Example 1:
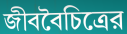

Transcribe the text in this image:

জীববৈচিত্রের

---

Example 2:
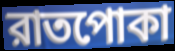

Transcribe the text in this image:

রাতপোকা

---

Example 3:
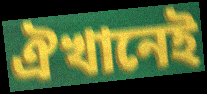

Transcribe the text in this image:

ঐখানেই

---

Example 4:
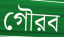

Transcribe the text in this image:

গৌরব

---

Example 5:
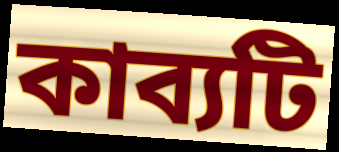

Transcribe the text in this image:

কাব্যটি